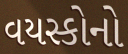
વયસ્કોનો